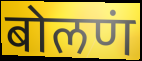
बोलणं